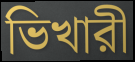
ভিখারী